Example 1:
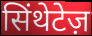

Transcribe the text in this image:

सिंथेटेज़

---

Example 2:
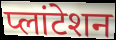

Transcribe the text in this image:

प्लांटेशन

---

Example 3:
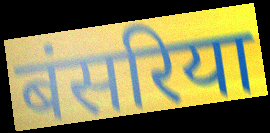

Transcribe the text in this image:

बंसरिया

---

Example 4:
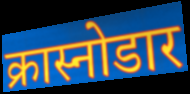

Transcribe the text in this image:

क्रास्नोडार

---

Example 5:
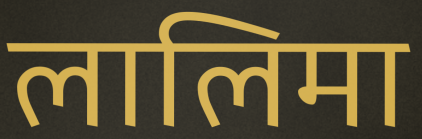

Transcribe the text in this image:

लालिमा